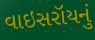
વાઇસરૉયનું